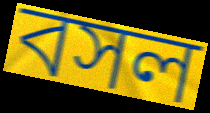
বসল